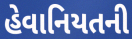
હેવાનિયતની